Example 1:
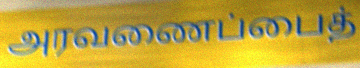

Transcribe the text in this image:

அரவணைப்பைத்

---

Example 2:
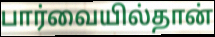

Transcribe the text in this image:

பார்வையில்தான்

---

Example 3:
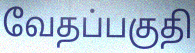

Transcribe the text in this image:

வேதப்பகுதி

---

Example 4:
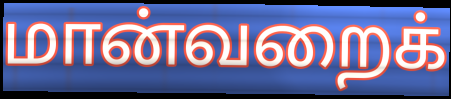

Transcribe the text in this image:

மான்வறைக்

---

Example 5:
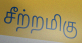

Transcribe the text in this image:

சீற்றமிகு